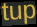
tup